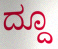
ದ್ದೂ